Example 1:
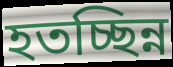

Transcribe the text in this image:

হতচ্ছিন্ন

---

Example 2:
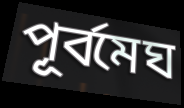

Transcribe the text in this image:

পূর্বমেঘ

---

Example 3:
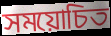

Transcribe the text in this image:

সময়োচিত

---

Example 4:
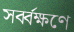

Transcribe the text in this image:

সর্ব্বক্ষণে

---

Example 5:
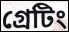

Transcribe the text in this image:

গ্রেটিং